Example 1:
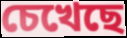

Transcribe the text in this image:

চেখেছে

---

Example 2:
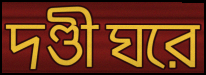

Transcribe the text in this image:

দণ্ডীঘরে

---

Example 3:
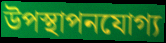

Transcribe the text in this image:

উপস্থাপনযোগ্য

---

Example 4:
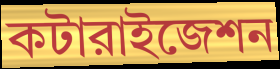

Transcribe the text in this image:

কটারাইজেশন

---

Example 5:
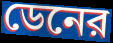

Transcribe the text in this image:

ডেনের